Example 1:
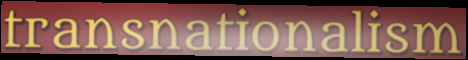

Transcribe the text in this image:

transnationalism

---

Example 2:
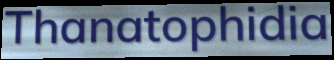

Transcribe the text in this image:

Thanatophidia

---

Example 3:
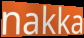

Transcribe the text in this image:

nakka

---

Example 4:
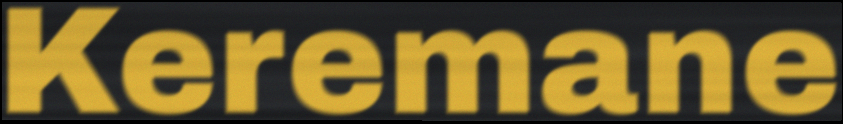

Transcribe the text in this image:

Keremane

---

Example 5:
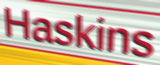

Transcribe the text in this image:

Haskins